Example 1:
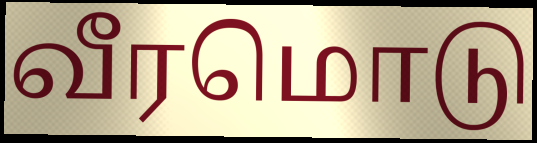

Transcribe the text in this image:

வீரமொடு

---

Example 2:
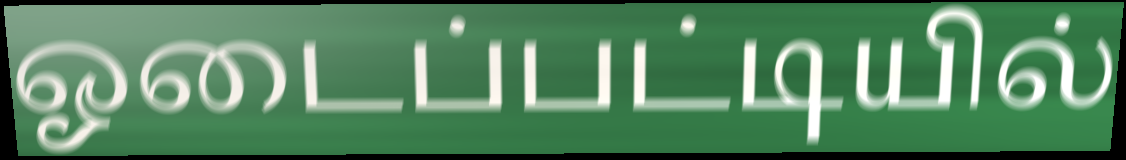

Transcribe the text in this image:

ஓடைப்பட்டியில்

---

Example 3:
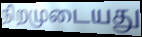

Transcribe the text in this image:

நிறமுடையது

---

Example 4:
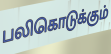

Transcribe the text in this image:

பலிகொடுக்கும்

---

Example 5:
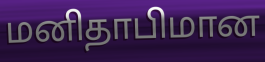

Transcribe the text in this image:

மனிதாபிமான